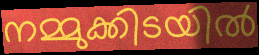
നമ്മുക്കിടയിൽ